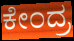
ಕೇಂದ್ರ